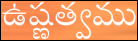
ఉష్ణత్వము